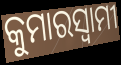
କୁମାରସ୍ୱାମୀ